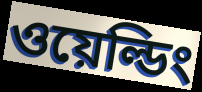
ওয়েল্ডিং